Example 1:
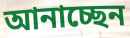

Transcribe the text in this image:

আনাচ্ছেন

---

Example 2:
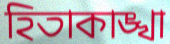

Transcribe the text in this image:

হিতাকাঙ্খা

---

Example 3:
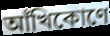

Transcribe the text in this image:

আঁখিকোণে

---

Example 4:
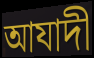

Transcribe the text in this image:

আযাদী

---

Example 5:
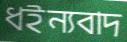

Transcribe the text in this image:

ধইন্যবাদ